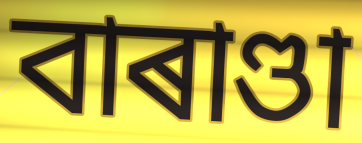
বাৰাণ্ডা